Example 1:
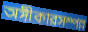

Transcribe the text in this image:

অঙ্গীকারসম্পন্ন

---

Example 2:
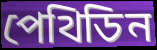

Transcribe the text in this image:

পেথিডিন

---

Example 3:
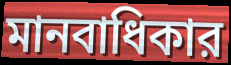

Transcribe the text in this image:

মানবাধিকার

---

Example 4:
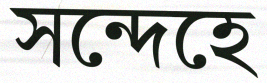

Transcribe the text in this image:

সন্দেহে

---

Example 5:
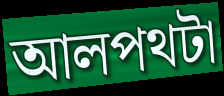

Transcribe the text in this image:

আলপথটা